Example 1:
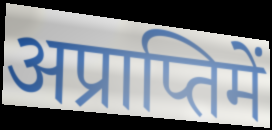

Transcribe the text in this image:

अप्राप्तिमें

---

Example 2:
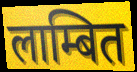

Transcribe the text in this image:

लाम्बित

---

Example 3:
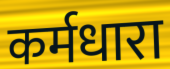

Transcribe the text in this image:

कर्मधारा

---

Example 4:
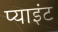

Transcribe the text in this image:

प्याइंट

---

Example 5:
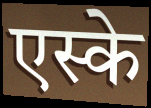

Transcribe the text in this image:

एस्के